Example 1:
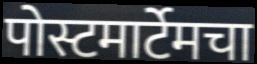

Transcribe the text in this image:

पोस्टमार्टेमचा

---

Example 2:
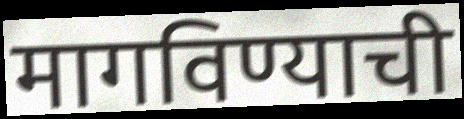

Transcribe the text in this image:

मागविण्याची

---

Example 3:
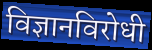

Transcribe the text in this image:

विज्ञानविरोधी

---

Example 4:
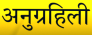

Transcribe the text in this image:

अनुग्रहिली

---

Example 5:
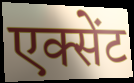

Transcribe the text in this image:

एक्सेंट